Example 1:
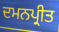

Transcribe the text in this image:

ਦਮਨਪ੍ਰੀਤ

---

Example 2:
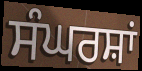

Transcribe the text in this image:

ਸੰਘਰਸ਼ਾਂ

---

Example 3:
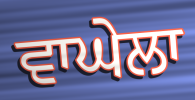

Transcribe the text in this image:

ਵਾਘੇਲਾ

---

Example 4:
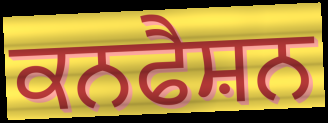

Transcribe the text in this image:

ਕਨਫੈਸ਼ਨ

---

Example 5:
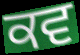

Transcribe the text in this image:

ਕਵ